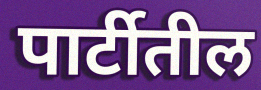
पार्टीतील